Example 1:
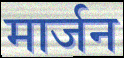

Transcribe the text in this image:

मार्जन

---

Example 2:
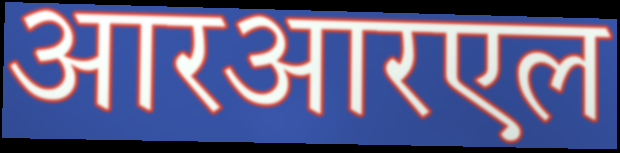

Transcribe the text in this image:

आरआरएल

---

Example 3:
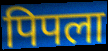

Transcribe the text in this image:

पिपला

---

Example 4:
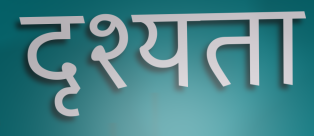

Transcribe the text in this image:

दृश्यता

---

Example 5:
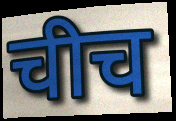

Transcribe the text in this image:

चीच